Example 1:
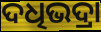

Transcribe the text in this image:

ଦଧିଭଦ୍ରା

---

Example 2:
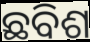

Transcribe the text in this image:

ଛବିଶ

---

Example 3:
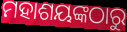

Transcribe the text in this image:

ମହାଶୟଙ୍କଠାରୁ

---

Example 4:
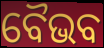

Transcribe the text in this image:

ବୈଭବ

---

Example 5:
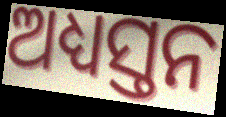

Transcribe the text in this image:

ଅଧ୍ୟସ୍ତନ